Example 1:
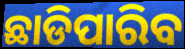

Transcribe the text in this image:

ଛାଡିପାରିବ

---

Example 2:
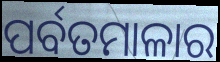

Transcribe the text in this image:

ପର୍ବତମାଳାର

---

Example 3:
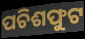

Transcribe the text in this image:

ପଚିଶଫୁଟ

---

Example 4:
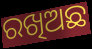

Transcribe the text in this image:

ରଖିଅଛ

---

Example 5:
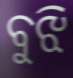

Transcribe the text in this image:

ବୁଝି